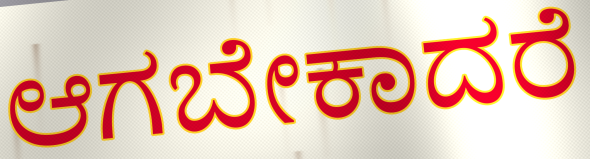
ಆಗಬೇಕಾದರೆ